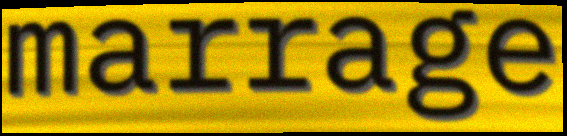
marrage